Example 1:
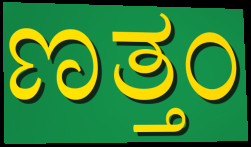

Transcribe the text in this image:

ಣತ್ತಂ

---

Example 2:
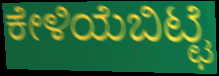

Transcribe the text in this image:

ಕೇಳಿಯೆಬಿಟ್ಟೆ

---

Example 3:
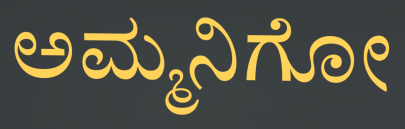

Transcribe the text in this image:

ಅಮ್ಮನಿಗೋ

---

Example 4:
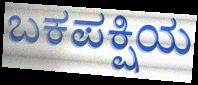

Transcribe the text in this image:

ಬಕಪಕ್ಷಿಯ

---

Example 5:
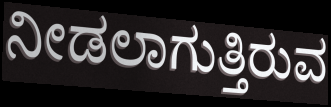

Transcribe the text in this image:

ನೀಡಲಾಗುತ್ತಿರುವ